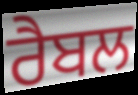
ਰੈਬਲ